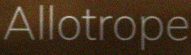
Allotrope